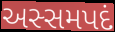
અસ્સમપદં